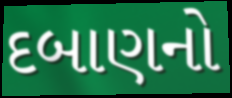
દબાણનો